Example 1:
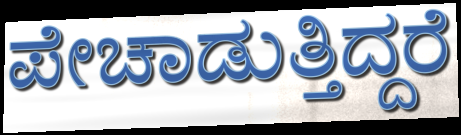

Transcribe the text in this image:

ಪೇಚಾಡುತ್ತಿದ್ದರೆ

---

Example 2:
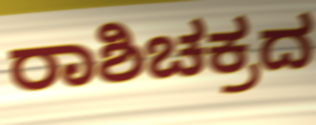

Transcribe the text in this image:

ರಾಶಿಚಕ್ರದ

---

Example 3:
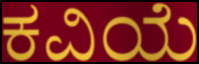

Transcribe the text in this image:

ಕವಿಯೆ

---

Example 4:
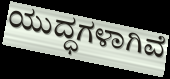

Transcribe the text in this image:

ಯುದ್ಧಗಳಾಗಿವೆ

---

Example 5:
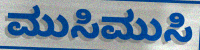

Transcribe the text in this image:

ಮುಸಿಮುಸಿ